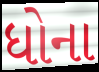
ધોના